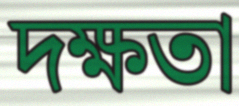
দক্ষতা